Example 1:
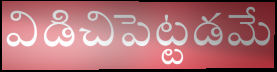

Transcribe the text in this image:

విడిచిపెట్టడమే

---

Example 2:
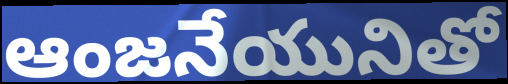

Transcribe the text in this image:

ఆంజనేయునితో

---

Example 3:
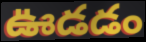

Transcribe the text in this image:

ఊడడం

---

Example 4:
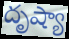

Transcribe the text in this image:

దృష్యా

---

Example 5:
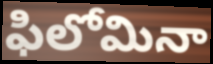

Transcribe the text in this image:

ఫిలోమినా